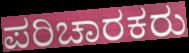
ಪರಿಚಾರಕರು